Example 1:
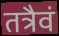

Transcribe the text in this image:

तत्रैवं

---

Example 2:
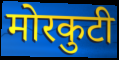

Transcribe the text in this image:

मोरकुटी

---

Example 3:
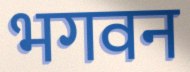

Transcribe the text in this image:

भगवन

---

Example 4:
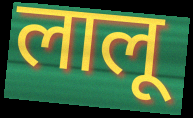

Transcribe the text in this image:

लालू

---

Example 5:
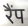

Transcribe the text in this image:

रैंप